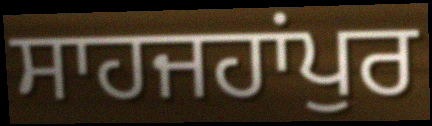
ਸਾਹਜਹਾਂਪੁਰ